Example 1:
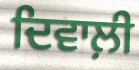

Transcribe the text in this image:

ਦਿਵਾਲ਼ੀ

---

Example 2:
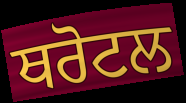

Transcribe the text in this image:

ਥਰੋਟਲ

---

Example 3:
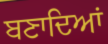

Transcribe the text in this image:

ਬਣਾਦਿਆਂ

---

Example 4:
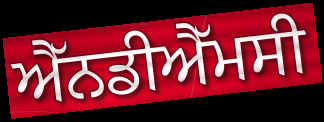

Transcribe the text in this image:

ਐੱਨਡੀਐੱਮਸੀ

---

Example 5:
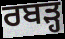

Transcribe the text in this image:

ਰਬੜ੍ਹ